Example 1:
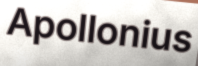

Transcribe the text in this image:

Apollonius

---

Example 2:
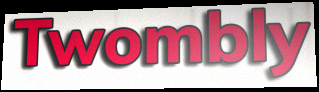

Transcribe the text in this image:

Twombly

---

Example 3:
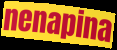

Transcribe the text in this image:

nenapina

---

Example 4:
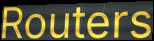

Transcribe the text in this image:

Routers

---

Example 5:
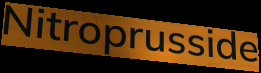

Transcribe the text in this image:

Nitroprusside